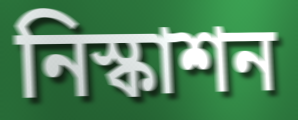
নিস্কাশন